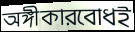
অঙ্গীকারবোধই